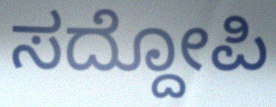
ಸದ್ದೋಪಿ